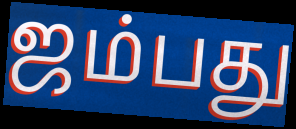
ஜம்பது